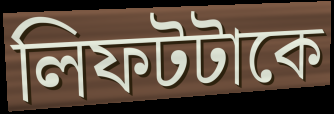
লিফটটাকে